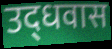
उद्धवास